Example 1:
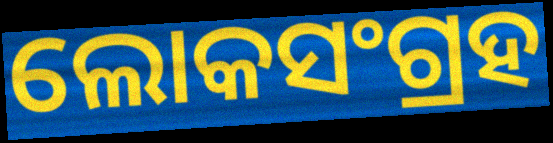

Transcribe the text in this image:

ଲୋକସଂଗ୍ରହ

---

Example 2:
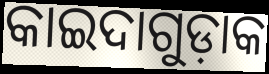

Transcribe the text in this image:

କାଇଦାଗୁଡ଼ାକ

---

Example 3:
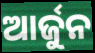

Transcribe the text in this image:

ଆର୍ଜୁନ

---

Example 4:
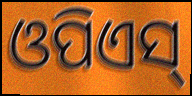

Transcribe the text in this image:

ଓପିଏସ୍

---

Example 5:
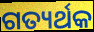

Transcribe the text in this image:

ଗତ୍ୟର୍ଥକ